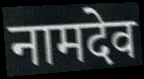
नामदेव